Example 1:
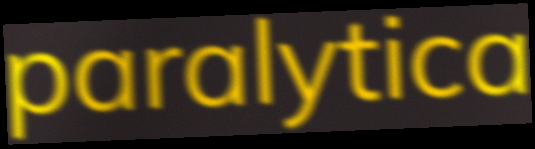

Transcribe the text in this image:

paralytica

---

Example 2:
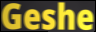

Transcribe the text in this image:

Geshe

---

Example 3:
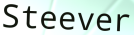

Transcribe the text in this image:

Steever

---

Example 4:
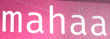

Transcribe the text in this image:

mahaa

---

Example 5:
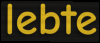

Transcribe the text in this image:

lebte